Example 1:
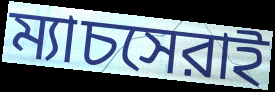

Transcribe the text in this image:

ম্যাচসেরাই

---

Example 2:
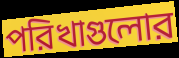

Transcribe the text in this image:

পরিখাগুলোর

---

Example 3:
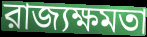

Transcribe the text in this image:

রাজ্যক্ষমতা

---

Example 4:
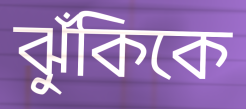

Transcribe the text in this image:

ঝুঁকিকে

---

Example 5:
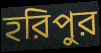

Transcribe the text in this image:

হরিপুর